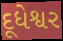
દૂધેશ્વર